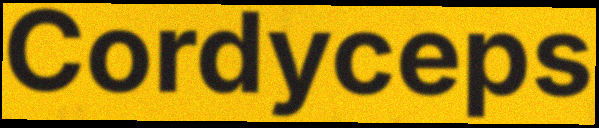
Cordyceps